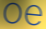
oe